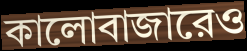
কালোবাজারেও